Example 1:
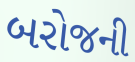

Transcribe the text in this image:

બરોજની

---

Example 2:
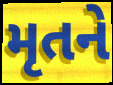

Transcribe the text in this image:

મૃતને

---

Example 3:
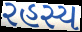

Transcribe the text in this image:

રહસ્ય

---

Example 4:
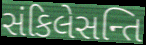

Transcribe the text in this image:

સંકિલેસન્તિ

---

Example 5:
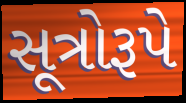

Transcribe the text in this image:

સૂત્રોરૂપે